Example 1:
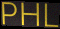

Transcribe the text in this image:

PHL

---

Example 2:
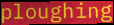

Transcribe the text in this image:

ploughing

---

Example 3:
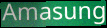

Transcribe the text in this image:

Amasung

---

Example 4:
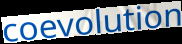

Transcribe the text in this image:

coevolution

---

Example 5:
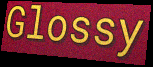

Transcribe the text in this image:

Glossy